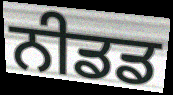
ਨੀਡਡ